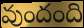
వుందంది